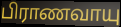
பிராணவாயு